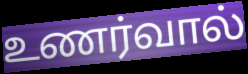
உணர்வால்